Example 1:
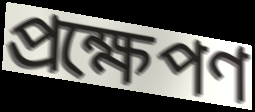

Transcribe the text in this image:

প্ৰক্ষেপণ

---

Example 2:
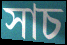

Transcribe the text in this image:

সাচ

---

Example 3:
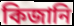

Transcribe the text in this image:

কিজানি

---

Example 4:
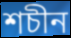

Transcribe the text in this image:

শচীন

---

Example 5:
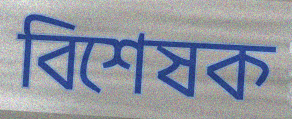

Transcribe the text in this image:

বিশেষক